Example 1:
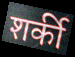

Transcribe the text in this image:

शर्की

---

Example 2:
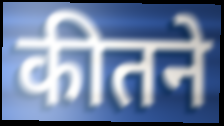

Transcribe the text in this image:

कीतने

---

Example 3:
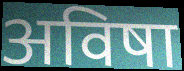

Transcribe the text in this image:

अविषा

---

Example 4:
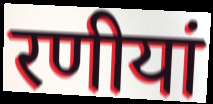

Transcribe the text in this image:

रणीयां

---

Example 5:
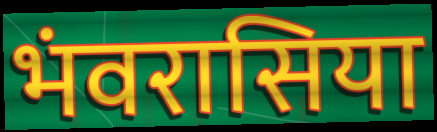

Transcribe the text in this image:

भंवरासिया